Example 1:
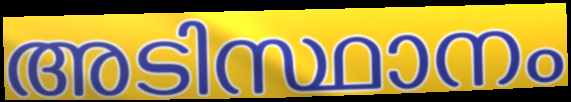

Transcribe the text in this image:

അടിസ്ഥാനം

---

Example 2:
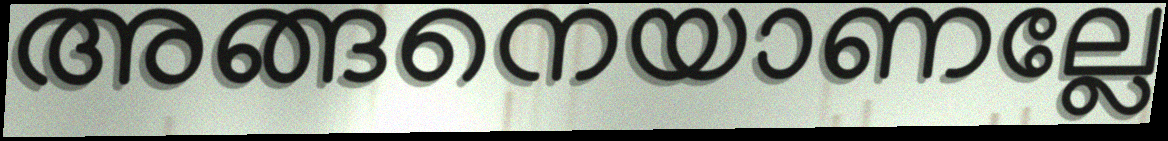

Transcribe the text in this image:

അങ്ങനെയാണല്ലേ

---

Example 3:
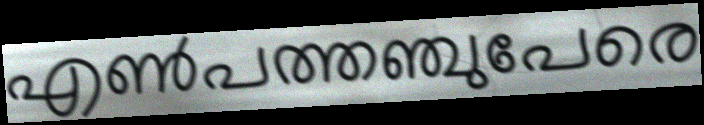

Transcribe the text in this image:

എൺപത്തഞ്ചുപേരെ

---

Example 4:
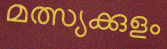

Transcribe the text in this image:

മത്സ്യക്കുളം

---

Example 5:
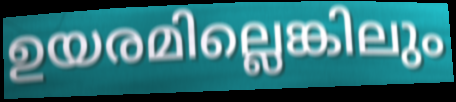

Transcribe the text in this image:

ഉയരമില്ലെങ്കിലും